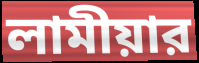
লামীয়ার